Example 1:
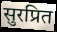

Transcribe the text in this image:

सुरप्रित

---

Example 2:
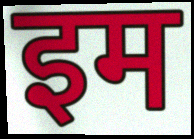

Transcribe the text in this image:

इम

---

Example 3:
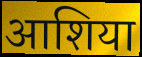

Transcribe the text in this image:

आशिया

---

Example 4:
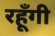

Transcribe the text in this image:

रहूँगी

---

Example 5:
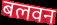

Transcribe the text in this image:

बलवन